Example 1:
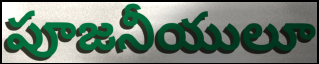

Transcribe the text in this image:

పూజనీయులూ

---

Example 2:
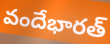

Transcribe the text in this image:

వందేభారత్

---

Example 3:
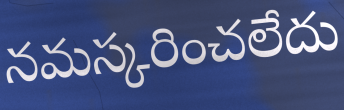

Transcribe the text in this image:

నమస్కరించలేదు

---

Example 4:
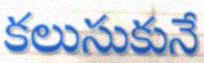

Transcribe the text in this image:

కలుసుకునే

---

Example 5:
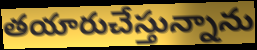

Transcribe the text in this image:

తయారుచేస్తున్నాను